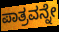
ಪಾತ್ರವನ್ನೇ